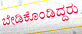
ಬೇಡಿಕೊಂಡಿದ್ದರು